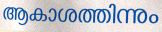
ആകാശത്തിന്നും